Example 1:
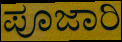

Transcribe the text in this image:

ಪೂಜಾರಿ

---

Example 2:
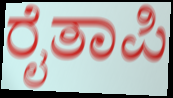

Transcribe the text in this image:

ರೈತಾಪಿ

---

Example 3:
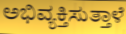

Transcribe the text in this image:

ಅಭಿವ್ಯಕ್ತಿಸುತ್ತಾಳೆ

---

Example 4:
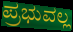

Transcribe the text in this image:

ಪ್ರಭುವಲ್ಲ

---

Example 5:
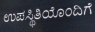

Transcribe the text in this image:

ಉಪಸ್ಥಿತಿಯೊಂದಿಗೆ